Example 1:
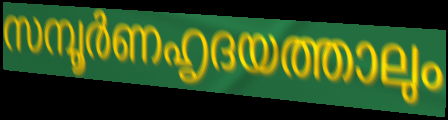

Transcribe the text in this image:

സമ്പൂർണഹൃദയത്താലും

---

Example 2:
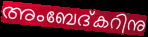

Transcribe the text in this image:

അംബേദ്കറിനു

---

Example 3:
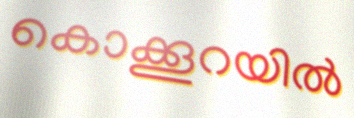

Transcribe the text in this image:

കൊക്കൂറയിൽ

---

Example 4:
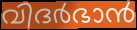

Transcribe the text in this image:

വിദർഭാൻ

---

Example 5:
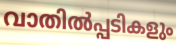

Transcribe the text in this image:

വാതിൽപ്പടികളും